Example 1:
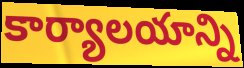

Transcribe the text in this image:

కార్యాలయాన్ని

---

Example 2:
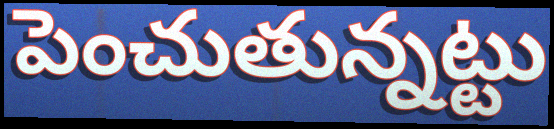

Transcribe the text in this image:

పెంచుతున్నట్టు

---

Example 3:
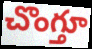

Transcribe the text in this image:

చొంగ్తూ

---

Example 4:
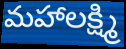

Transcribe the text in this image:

మహాలక్ష్మి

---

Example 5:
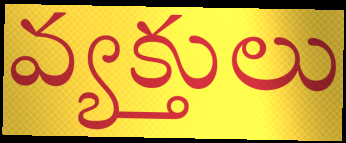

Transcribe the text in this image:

వ్యక్తులు